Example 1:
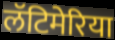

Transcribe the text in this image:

लॅटिमेरिया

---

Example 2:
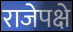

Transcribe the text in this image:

राजेपक्षे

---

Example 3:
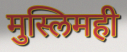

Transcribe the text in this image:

मुस्लिमही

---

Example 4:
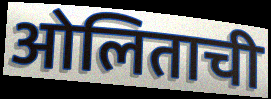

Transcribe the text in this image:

ओलिताची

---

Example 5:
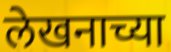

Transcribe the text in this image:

लेखनाच्या